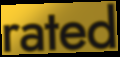
rated